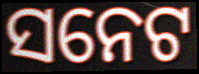
ସନେଟ